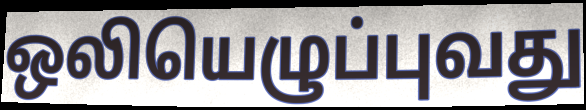
ஒலியெழுப்புவது